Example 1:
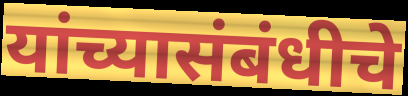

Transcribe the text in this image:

यांच्यासंबंधीचे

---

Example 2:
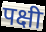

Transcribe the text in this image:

पक्षी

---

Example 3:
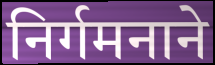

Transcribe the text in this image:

निर्गमनाने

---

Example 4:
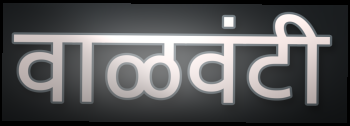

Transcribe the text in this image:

वाळवंटी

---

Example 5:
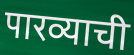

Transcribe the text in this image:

पारव्याची